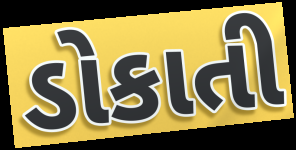
ડોકાતી